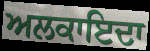
ਅਲਕਾਇਦਾ